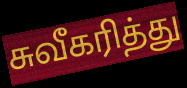
சுவீகரித்து